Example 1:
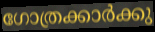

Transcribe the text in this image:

ഗോത്രക്കാർക്കു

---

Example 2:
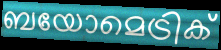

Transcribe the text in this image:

ബയോമെട്രിക്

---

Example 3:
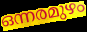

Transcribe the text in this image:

ഒന്നരമുഴം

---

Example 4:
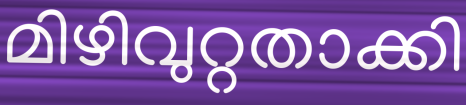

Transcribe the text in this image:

മിഴിവുറ്റതാക്കി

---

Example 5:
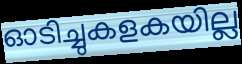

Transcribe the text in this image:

ഓടിച്ചുകളകയില്ല